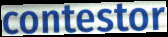
contestor